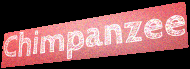
Chimpanzee